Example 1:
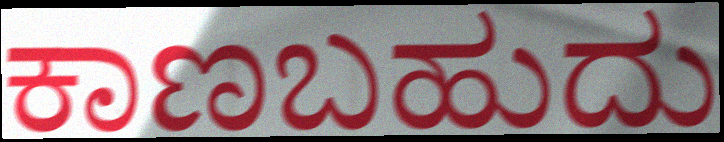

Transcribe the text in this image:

ಕಾಣಬಹುದು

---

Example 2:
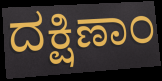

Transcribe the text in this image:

ದಕ್ಷಿಣಾಂ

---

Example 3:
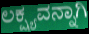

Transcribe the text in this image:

ಲಕ್ಷ್ಯವನ್ನಾಗಿ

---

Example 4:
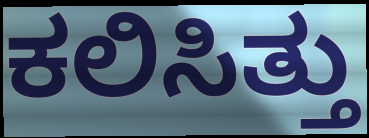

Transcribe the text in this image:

ಕಲಿಸಿತ್ತು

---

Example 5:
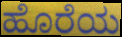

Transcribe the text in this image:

ಹೊರೆಯ